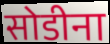
सोडीना